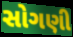
સોગણી